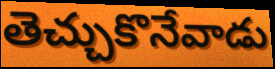
తెచ్చుకొనేవాడు